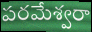
పరమేశ్వరా